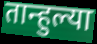
तान्हुल्या